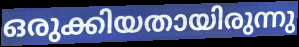
ഒരുക്കിയതായിരുന്നു